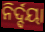
ନିର୍ଦ୍ଦୟା